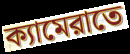
ক্যামেরাতে